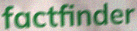
factfinder